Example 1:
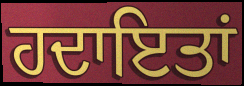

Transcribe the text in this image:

ਹਦਾਇਤਾਂ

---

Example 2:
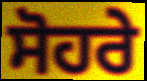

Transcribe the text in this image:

ਸੋਹਰੇ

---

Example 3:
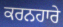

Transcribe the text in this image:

ਕਰਨਹਾਰੇ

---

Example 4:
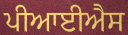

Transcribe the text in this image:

ਪੀਆਈਐਸ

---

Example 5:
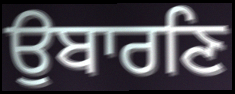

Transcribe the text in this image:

ਉਬਾਰਣਿ